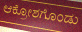
ಆಕ್ರೋಶಗೊಂಡು